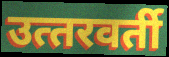
उत्‍तरवर्ती